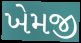
ખેમજી